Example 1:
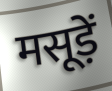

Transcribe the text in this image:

मसूड़ें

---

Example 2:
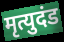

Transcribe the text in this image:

मृत्युदंड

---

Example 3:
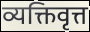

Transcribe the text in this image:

व्यक्तिवृत्त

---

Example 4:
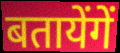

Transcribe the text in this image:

बतायेंगें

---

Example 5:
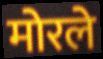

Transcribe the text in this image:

मोरले